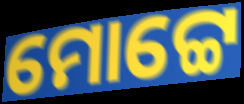
ମୋଟ୍ଟେ